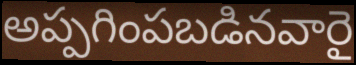
అప్పగింపబడినవారై